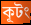
কূটং